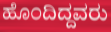
ಹೊಂದಿದ್ದವರು